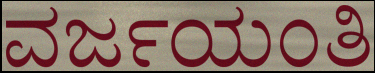
ವರ್ಜಯಂತಿ